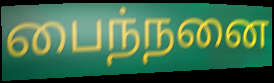
பைந்நனை